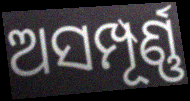
ଅସମ୍ପୂର୍ଣ୍ଣ